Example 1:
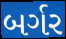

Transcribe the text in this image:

બર્ગર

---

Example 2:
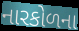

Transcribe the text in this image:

નારકોળના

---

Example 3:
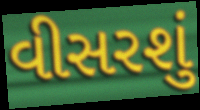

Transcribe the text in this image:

વીસરશું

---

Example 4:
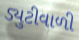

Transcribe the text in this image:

ડ્યુટીવાળી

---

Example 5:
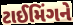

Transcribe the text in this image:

ટાઈમિંગને